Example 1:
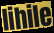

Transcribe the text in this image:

lihile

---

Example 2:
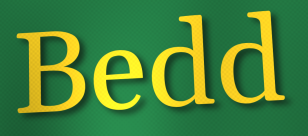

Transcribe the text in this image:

Bedd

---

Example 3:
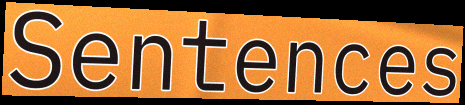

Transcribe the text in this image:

Sentences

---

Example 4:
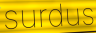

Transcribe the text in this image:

surdus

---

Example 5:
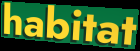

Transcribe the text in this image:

habitat